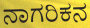
ನಾಗರಿಕನ